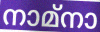
നാമ്നാ